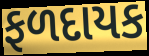
ફળદાયક